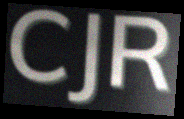
CJR